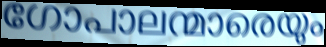
ഗോപാലന്മാരെയും